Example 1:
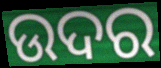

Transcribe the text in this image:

ଉଦର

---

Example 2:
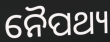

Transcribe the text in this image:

ନୈପଥ୍ୟ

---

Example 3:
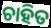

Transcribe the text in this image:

ଚାହିତ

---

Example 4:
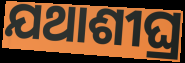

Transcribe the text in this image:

ଯଥାଶୀଘ୍ର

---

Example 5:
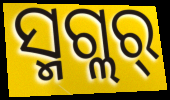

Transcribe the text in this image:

ସ୍ମଗ୍ଲର୍